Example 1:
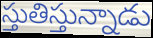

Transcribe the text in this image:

స్తుతిస్తున్నాడు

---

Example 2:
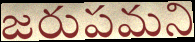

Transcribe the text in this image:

జరుపమని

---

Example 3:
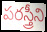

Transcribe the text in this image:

పరస్త్రీని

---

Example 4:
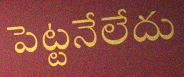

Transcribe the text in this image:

పెట్టనేలేదు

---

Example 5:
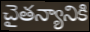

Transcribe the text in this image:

చైతన్యానికి